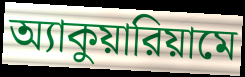
অ্যাকুয়ারিয়ামে